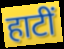
हाटीं